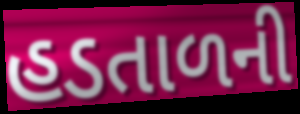
હડતાળની